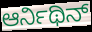
ಆರ್ನಿಥಿನ್